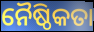
ନୈଷ୍ଠିକତା